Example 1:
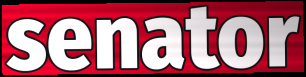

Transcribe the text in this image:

senator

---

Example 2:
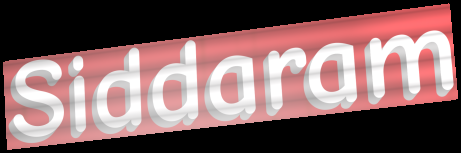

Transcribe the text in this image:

Siddaram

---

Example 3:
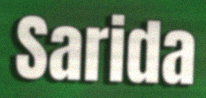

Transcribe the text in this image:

Sarida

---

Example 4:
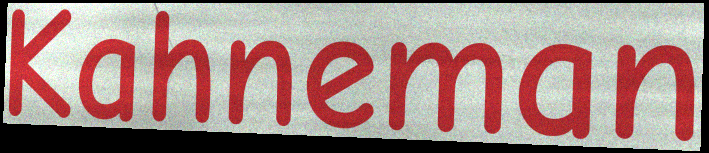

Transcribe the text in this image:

Kahneman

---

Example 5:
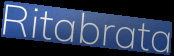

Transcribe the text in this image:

Ritabrata